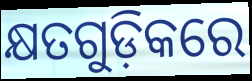
କ୍ଷତଗୁଡ଼ିକରେ